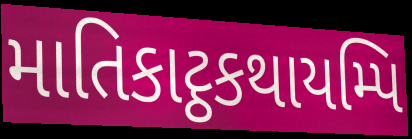
માતિકાટ્ઠકથાયમ્પિ